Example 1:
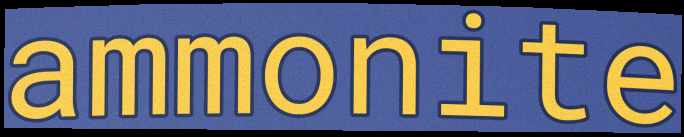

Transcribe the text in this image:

ammonite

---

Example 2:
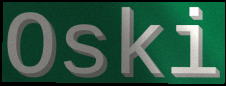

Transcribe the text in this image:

Oski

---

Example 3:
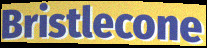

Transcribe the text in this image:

Bristlecone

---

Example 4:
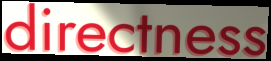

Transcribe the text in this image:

directness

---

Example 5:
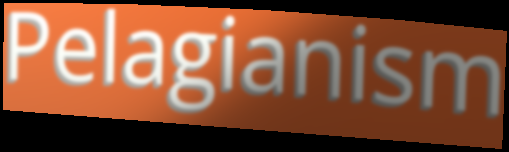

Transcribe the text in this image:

Pelagianism